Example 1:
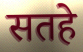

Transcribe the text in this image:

सतहे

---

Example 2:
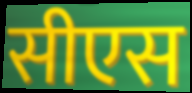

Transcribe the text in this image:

सीएस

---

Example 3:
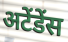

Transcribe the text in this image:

अटेंडेंस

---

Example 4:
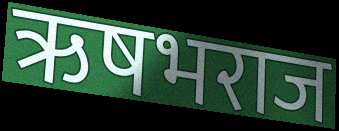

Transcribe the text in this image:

ऋषभराज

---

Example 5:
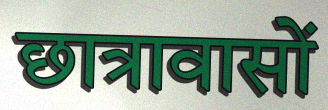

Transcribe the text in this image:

छात्रावासों